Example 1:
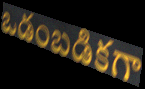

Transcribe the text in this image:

ఒడంబడికగా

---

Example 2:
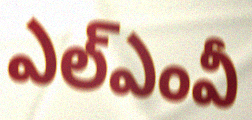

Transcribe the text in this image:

ఎల్ఎంవీ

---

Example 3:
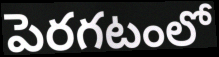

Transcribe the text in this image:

పెరగటంలో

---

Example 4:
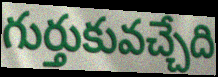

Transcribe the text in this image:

గుర్తుకువచ్చేది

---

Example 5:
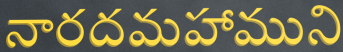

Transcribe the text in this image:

నారదమహాముని